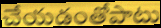
చేయడంతోపాటు